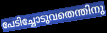
പേടിച്ചോടുവതെന്തിനു